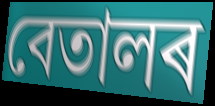
বেতালৰ